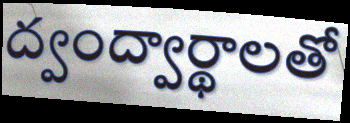
ద్వంద్వార్థాలతో